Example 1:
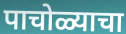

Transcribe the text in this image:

पाचोळ्याचा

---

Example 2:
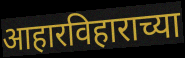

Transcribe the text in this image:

आहारविहाराच्या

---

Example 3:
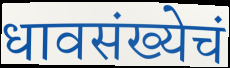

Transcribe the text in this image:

धावसंख्येचं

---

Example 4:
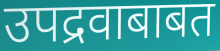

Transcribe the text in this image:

उपद्रवाबाबत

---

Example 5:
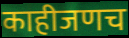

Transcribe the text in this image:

काहीजणच